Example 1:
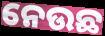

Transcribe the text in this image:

ନେଉଛ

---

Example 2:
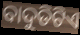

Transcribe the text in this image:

ବାଦୁଡିଟିଏ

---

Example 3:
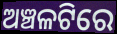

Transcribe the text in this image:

ଅଞ୍ଚଳଟିରେ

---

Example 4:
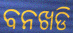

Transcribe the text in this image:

ବନଖଡି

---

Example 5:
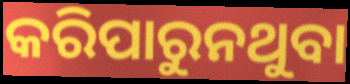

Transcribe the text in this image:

କରିପାରୁନଥୁବା